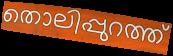
തൊലിപ്പുറത്ത്